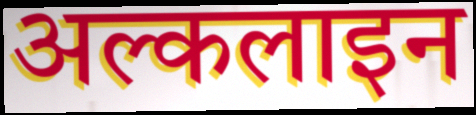
अल्कलाइन